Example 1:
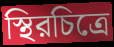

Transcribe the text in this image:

স্থিরচিত্রে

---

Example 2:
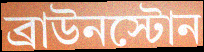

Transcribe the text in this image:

ব্রাউনস্টোন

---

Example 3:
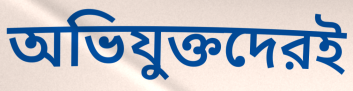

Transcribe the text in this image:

অভিযুক্তদেরই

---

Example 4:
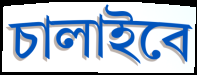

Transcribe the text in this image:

চালাইবে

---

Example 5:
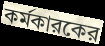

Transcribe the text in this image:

কর্মকারকের